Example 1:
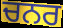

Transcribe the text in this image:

ਚਨਰ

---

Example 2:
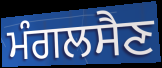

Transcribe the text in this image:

ਮੰਗਲਸੈਣ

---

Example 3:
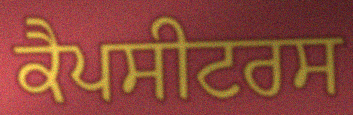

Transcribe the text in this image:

ਕੈਪਸੀਟਰਸ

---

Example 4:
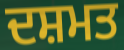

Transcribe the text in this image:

ਦਸ਼ਮਤ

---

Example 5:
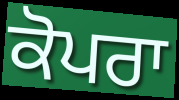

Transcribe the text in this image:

ਕੋਪਰਾ